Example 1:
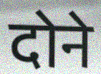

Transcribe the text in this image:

दोने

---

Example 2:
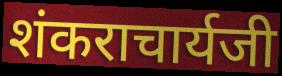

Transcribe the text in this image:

शंकराचार्यजी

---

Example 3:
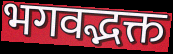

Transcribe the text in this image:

भगवद्भक्त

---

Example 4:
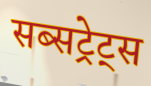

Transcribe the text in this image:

सब्सट्रेट्स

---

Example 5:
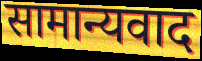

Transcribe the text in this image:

सामान्यवाद